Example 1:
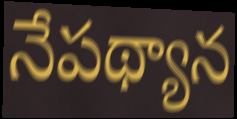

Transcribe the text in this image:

నేపథ్యాన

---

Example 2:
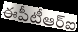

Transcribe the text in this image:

ఈపీటీఆర్ఐ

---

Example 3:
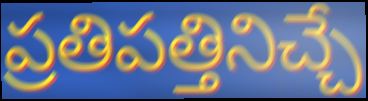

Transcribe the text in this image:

ప్రతిపత్తినిచ్చే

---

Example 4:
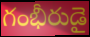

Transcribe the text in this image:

గంభీరుడై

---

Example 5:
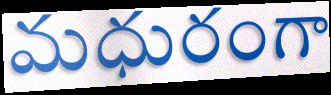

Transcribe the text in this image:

మధురంగా